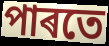
পাৰতে